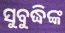
ସୁବୁଦ୍ଧିଙ୍କ